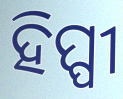
ହିପ୍ପୀ